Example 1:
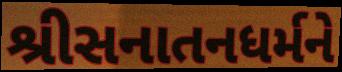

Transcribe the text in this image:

શ્રીસનાતનધર્મને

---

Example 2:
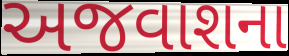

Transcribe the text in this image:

અજવાશના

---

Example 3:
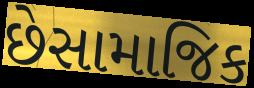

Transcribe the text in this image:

છેસામાજિક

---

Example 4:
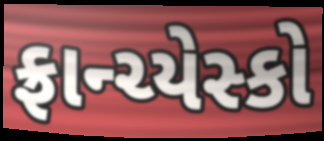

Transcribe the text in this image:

ફ્રાન્ચ્યેસ્કો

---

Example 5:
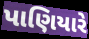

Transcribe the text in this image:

પાણિયારે